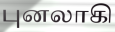
புனலாகி